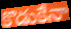
కొడుకేనా